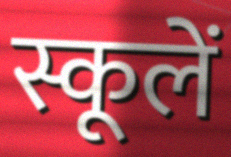
स्कूलें